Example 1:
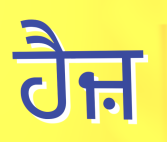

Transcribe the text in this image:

ਹੈਜ਼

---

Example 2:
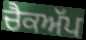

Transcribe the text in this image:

ਚੈਕਅੱਪ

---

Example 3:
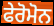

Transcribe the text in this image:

ਫੇਰੋਮੋਨ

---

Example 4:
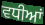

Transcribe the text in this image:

ਵਧੀਆਂ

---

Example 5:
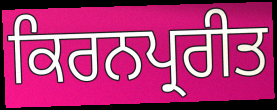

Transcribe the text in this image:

ਕਿਰਨਪ੍ਰਰੀਤ